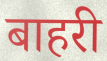
बाहरी